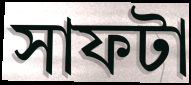
সাফটা